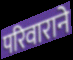
परिवाराने